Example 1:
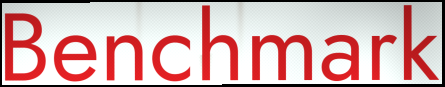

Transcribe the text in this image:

Benchmark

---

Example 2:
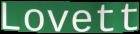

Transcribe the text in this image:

Lovett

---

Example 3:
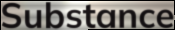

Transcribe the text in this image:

Substance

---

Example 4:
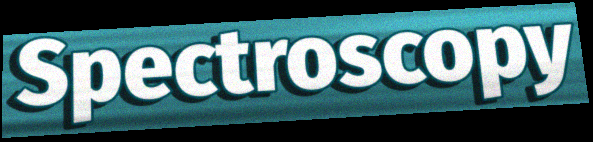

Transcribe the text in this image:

Spectroscopy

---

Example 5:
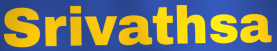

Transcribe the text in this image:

Srivathsa